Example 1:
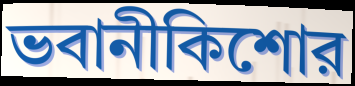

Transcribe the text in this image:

ভবানীকিশোর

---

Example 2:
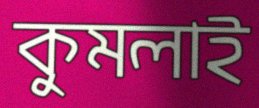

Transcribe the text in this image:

কুমলাই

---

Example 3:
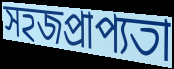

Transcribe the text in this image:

সহজপ্রাপ্যতা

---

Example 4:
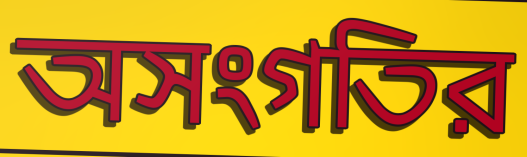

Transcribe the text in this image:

অসংগতির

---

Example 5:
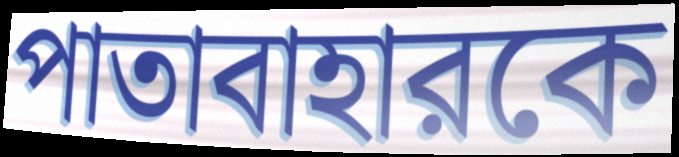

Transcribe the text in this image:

পাতাবাহারকে